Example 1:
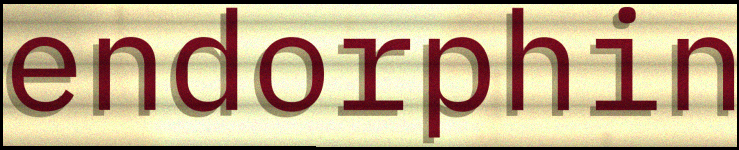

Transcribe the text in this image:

endorphin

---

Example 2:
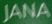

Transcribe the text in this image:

JANA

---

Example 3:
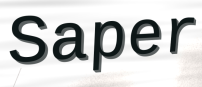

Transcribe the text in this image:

Saper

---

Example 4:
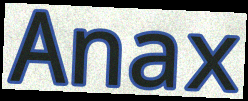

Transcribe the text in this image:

Anax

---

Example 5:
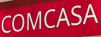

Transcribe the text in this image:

COMCASA